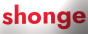
shonge